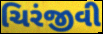
ચિરંજીવી